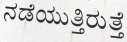
ನಡೆಯುತ್ತಿರುತ್ತೆ